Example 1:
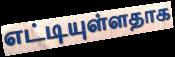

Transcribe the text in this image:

எட்டியுள்ளதாக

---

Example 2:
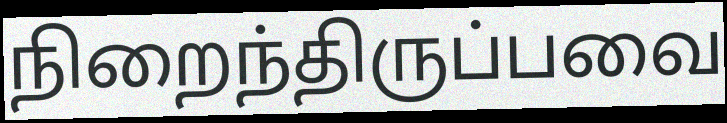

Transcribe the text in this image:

நிறைந்திருப்பவை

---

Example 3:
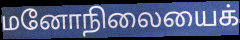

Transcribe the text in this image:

மனோநிலையைக்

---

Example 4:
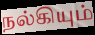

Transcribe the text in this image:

நல்கியும்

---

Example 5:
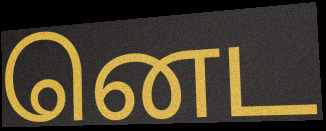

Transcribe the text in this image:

னெட